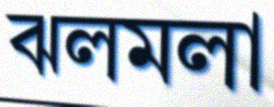
ঝলমলা